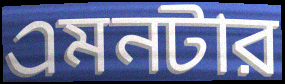
এমনটার